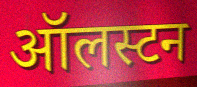
ऑलस्टन